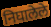
निघालेले